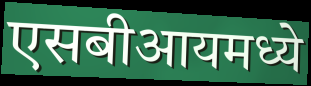
एसबीआयमध्ये